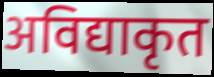
अविद्याकृत